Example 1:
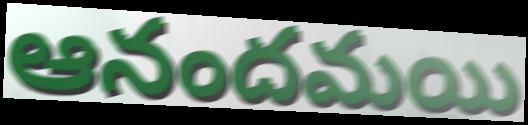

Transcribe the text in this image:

ఆనందమయి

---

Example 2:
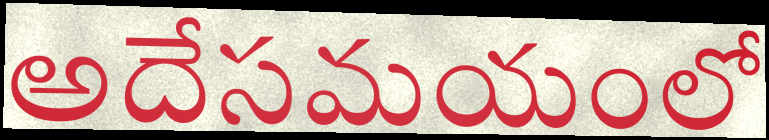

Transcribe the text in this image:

అదేసమయంలో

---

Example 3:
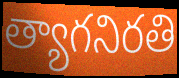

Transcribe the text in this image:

త్యాగనిరతి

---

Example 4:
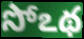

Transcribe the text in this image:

సోఽథ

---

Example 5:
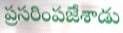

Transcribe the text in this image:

ప్రసరింపజేశాడు